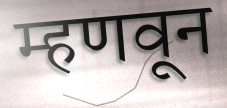
म्हणवून